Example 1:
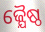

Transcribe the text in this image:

ଜ୍ଯୈଷ୍ଠ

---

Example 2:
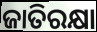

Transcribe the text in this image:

ଜାତିରକ୍ଷା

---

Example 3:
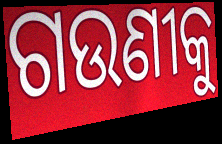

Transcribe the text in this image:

ଗଉଣୀକୁ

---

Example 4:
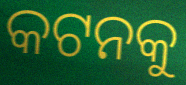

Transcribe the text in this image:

କଟନକୁ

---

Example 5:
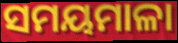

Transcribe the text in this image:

ସମୟମାଳା